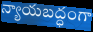
న్యాయబద్ధంగా